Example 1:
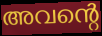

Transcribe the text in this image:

അവന്റെ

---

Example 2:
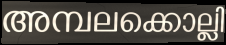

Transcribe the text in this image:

അമ്പലക്കൊല്ലി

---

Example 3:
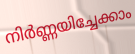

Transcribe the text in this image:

നിർണ്ണയിച്ചേക്കാം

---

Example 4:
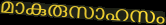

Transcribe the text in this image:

മാകുരുസാഹസം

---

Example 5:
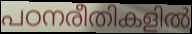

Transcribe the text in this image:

പഠനരീതികളിൽ